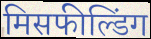
मिसफील्डिंग